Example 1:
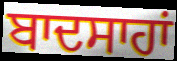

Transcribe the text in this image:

ਬਾਦਸਾਹਾਂ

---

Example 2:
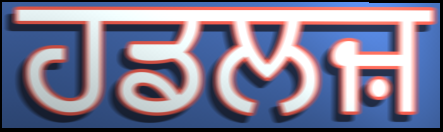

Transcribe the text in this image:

ਹਡਲਜ਼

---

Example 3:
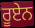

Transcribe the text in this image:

ਰੂਏਨ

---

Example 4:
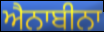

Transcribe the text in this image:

ਐਨਾਬੀਨਾ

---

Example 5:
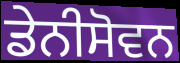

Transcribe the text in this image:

ਡੇਨੀਸੋਵਨ